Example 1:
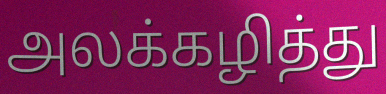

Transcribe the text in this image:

அலக்கழித்து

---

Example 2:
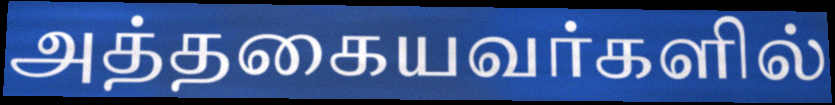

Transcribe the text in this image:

அத்தகையவர்களில்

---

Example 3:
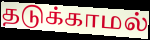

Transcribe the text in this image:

தடுக்காமல்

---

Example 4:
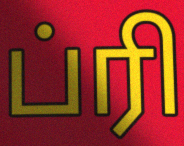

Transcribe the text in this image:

ப்ரி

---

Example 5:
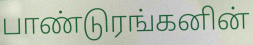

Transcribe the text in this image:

பாண்டுரங்கனின்